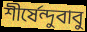
শীর্ষেন্দুবাবু